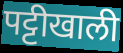
पट्टीखाली